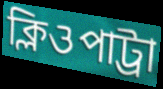
ক্লিওপাট্রা